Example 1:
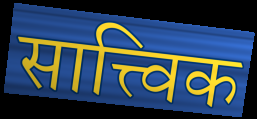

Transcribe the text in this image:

सात्त्विक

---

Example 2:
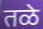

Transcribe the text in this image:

तळे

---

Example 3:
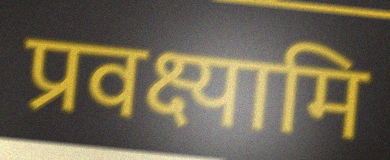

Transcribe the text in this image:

प्रवक्ष्यामि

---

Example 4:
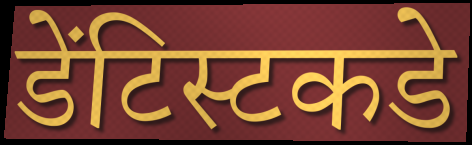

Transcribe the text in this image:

डेंटिस्टकडे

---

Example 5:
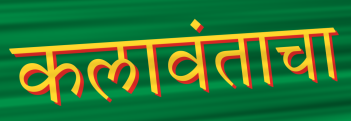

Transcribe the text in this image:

कलावंताचा